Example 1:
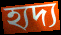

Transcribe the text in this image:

হ্যদ্য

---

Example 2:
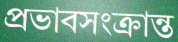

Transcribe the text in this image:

প্রভাবসংক্রান্ত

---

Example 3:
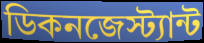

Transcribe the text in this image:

ডিকনজেস্ট্যান্ট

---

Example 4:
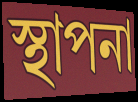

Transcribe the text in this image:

স্থাপনা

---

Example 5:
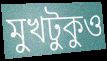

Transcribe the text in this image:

মুখটুকুও